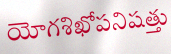
యోగశిఖోపనిషత్తు